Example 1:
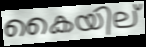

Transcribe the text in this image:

കൈയില്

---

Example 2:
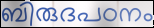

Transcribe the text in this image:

ബിരുദപഠനം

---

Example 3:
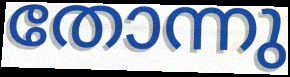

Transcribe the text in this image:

തോന്നു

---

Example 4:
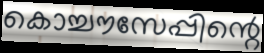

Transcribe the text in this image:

കൊച്ചൗസേപ്പിന്റെ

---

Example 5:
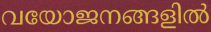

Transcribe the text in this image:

വയോജനങ്ങളിൽ